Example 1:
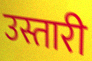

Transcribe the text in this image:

उस्तारी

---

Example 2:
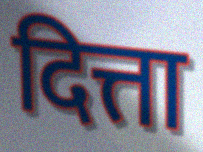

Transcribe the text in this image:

दित्ता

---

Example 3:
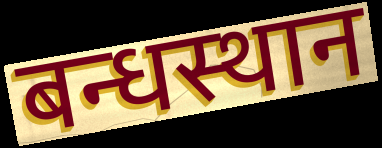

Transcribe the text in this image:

बन्धस्थान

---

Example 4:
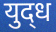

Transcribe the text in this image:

युद्‍ध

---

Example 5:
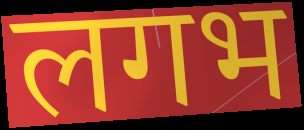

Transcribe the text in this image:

लगभ